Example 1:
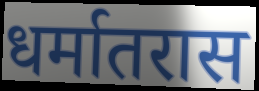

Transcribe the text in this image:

धर्मातरास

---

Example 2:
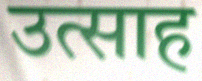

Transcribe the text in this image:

उत्साह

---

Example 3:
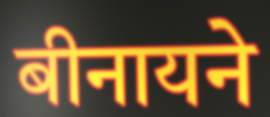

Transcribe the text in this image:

बीनायने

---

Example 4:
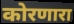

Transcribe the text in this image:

कोरणारा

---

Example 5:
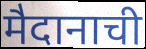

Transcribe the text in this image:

मैदानाची